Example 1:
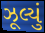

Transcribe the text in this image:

ઝૂલ્યું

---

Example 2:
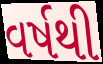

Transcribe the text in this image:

વર્ષથી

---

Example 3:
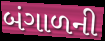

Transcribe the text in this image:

બંગાળની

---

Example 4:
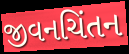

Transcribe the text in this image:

જીવનચિંતન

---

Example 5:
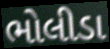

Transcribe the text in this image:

ભોલીડા